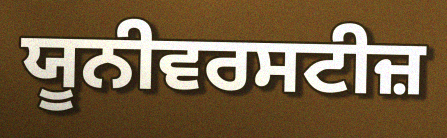
ਯੂਨੀਵਰਸਟੀਜ਼